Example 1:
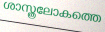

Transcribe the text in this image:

ശാസ്ത്രലോകത്തെ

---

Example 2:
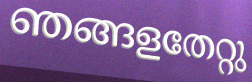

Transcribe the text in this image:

ഞങ്ങളതേറ്റു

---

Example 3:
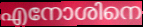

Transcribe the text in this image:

എനോശിനെ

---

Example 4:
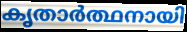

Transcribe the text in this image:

കൃതാർത്ഥനായി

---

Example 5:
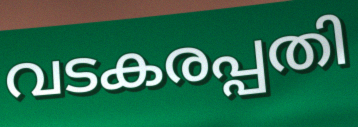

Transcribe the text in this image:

വടകരപ്പതി